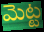
మెట్ట